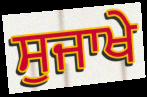
ਸੁਜਾਖੇ